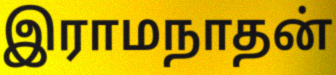
இராமநாதன்